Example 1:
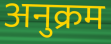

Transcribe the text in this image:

अनुक्रम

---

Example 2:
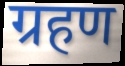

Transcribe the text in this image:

ग्रहण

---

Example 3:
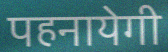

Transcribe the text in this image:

पहनायेगी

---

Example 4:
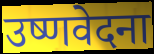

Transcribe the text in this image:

उष्णवेदना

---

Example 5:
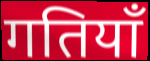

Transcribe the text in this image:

गतियाँ